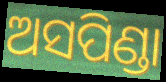
ଅସପିଣ୍ଡା